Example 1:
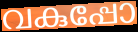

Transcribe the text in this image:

വകുപ്പോ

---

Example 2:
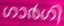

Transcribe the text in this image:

ഗാർഗി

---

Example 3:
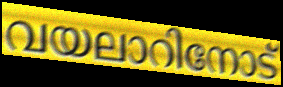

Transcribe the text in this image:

വയലാറിനോട്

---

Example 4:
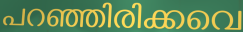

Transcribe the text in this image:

പറഞ്ഞിരിക്കവെ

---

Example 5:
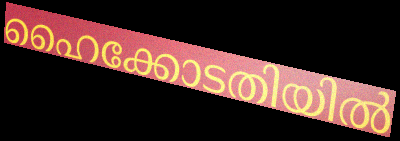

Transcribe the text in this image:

ഹൈക്കോടതിയിൽ